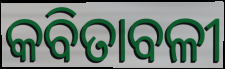
କବିତାବଳୀ